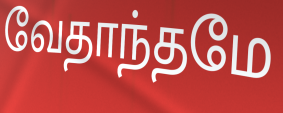
வேதாந்தமே